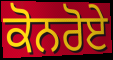
ਕੋਨਰੋਏ